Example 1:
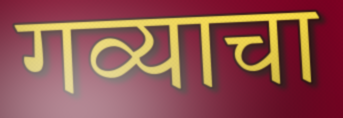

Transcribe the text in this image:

गव्याचा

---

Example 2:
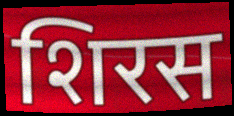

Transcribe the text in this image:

शिरस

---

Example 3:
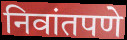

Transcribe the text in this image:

निवांतपणे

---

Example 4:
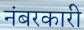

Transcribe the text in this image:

नंबरकारी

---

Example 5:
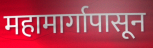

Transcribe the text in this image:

महामार्गापासून